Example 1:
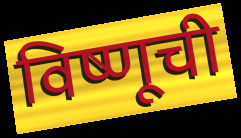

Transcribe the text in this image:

विष्णूची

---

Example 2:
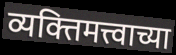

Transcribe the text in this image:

व्यक्तिमत्त्वाच्या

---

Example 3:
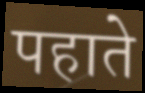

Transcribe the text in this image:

पहाते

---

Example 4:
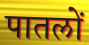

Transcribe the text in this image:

पातलों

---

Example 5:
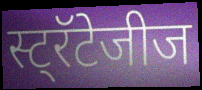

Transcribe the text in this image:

स्ट्रॅटेजीज